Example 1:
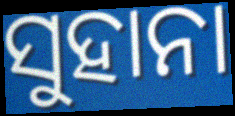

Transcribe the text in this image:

ସୁହାନା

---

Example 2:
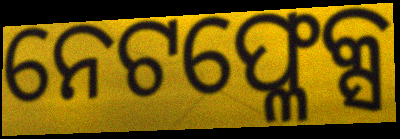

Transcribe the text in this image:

ନେଟଫ୍ଳେକ୍ସ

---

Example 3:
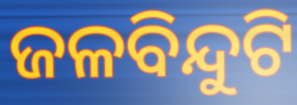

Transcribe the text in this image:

ଜଳବିନ୍ଦୁଟି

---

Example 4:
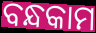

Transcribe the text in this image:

ବନ୍ଧକାମ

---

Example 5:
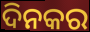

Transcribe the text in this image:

ଦିନକର